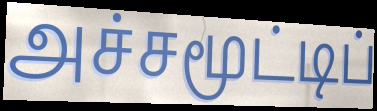
அச்சமூட்டிப்